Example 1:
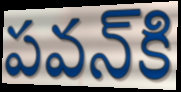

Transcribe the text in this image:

పవన్‌కి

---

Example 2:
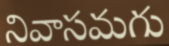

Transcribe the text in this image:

నివాసమగు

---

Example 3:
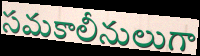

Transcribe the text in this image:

సమకాలీనులుగా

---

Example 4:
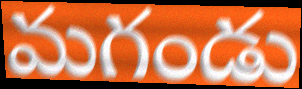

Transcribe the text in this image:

మగండు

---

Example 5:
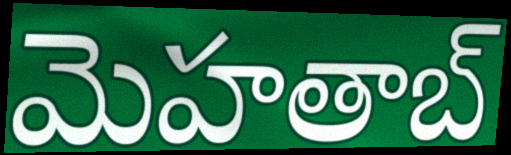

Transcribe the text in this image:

మెహతాబ్